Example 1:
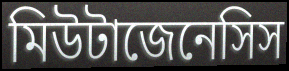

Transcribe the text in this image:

মিউটাজেনেসিস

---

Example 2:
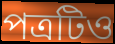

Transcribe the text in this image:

পত্রটিও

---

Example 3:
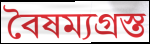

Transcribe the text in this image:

বৈষম্যগ্রস্ত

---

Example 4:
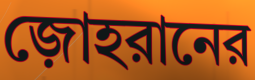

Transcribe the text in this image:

জ়োহরানের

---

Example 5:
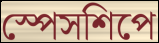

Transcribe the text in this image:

স্পেসশিপে